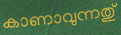
കാണാവുന്നതു്